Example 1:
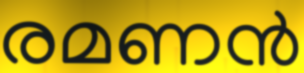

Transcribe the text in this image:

രമണൻ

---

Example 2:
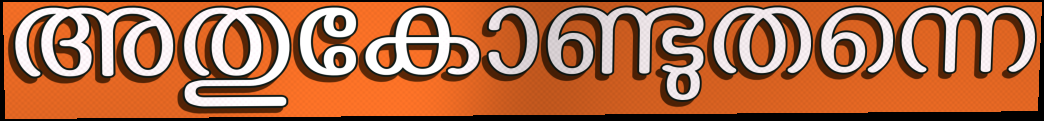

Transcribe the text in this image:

അതുകോണ്ടുതന്നെ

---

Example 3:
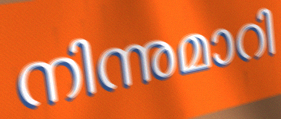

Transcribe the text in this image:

നിന്നുമാറി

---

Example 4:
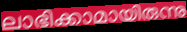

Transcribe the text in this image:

ലാഭിക്കാമായിരുന്നു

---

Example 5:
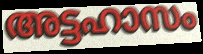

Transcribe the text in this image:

അട്ടഹാസം